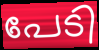
പേടി